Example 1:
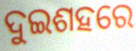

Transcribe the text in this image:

ଦୁଇଶହରେ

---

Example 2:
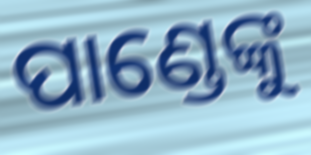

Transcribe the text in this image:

ପାଣ୍ଡେଙ୍କୁ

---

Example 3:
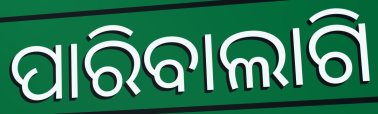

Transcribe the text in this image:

ପାରିବାଲାଗି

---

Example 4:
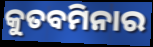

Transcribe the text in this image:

କୁତବମିନାର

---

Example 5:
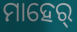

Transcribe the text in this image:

ମାହେର୍